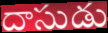
దాసుడు